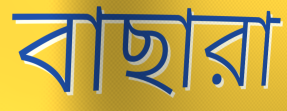
বাছারা